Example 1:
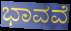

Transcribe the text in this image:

ಭಾವವೆ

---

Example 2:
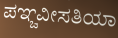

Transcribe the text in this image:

ಪಞ್ಚವೀಸತಿಯಾ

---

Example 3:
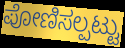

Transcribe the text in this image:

ಪೋಣಿಸಲ್ಪಟ್ಟು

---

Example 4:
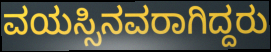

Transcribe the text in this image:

ವಯಸ್ಸಿನವರಾಗಿದ್ದರು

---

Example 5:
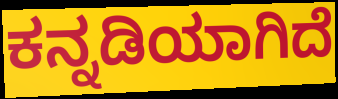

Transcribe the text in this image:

ಕನ್ನಡಿಯಾಗಿದೆ